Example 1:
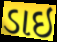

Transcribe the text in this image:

ડાઇ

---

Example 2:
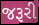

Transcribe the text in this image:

જરૂરી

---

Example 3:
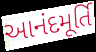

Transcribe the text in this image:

આનંદમૂર્તિ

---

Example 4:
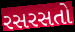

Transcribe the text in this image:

રસરસતો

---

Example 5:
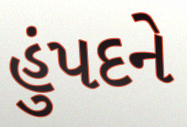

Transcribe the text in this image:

હુંપદને